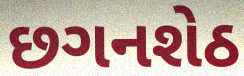
છગનશેઠ